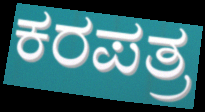
ಕರಪತ್ರ